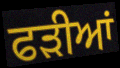
ਫੜੀਆਂ